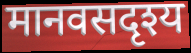
मानवसदृश्य